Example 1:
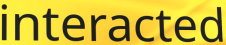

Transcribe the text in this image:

interacted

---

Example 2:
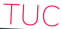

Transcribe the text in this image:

TUC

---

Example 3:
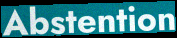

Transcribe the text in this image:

Abstention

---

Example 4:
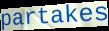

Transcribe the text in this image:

partakes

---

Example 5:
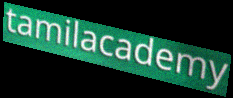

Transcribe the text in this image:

tamilacademy